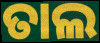
ତାଲ